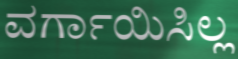
ವರ್ಗಾಯಿಸಿಲ್ಲ